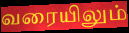
வரையிலும்